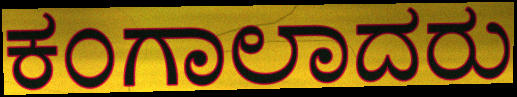
ಕಂಗಾಲಾದರು